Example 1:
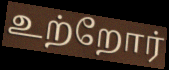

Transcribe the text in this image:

உற்றோர்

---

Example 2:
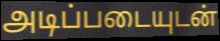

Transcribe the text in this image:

அடிப்படையுடன்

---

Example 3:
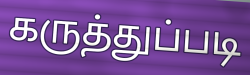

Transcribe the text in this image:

கருத்துப்படி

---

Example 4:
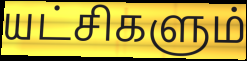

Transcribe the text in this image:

யட்சிகளும்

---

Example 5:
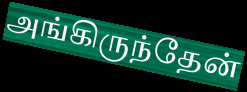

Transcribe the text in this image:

அங்கிருந்தேன்